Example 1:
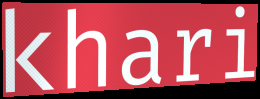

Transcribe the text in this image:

khari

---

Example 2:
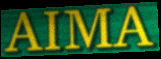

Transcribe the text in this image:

AIMA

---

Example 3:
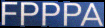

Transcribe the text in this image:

FPPPA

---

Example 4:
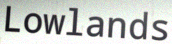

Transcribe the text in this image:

Lowlands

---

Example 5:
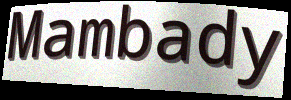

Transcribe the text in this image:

Mambady